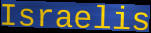
Israelis